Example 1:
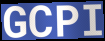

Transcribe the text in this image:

GCPI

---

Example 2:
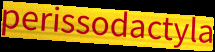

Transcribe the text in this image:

perissodactyla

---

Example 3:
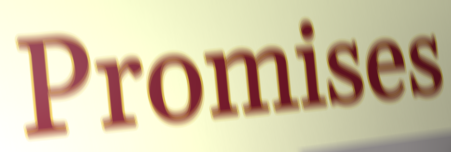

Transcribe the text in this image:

Promises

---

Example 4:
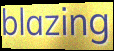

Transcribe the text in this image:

blazing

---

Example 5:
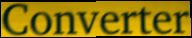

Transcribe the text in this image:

Converter